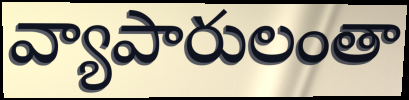
వ్యాపారులంతా